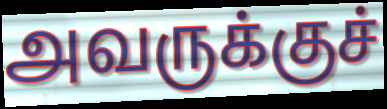
அவருக்குச்